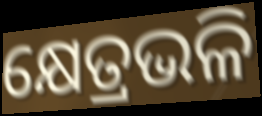
କ୍ଷେତ୍ରଭଳି